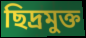
ছিদ্রমুক্ত